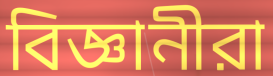
বিজ্ঞানীরা